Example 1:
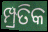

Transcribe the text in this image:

ମ୍ପ୍ରତିକ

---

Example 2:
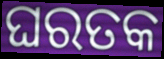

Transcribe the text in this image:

ଘରତକ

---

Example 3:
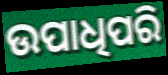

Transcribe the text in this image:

ଉପାଧିପରି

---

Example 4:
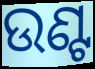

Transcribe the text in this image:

ଉଣ୍ଟ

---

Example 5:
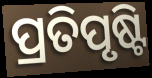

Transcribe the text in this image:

ପ୍ରତିପୃଷ୍ଟି